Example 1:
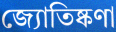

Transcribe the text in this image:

জ্যোতিষ্কণা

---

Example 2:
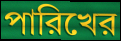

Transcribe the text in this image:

পারিখের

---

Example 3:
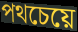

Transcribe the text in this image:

পথচেয়ে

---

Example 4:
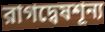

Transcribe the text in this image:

রাগদ্বেষশূন্য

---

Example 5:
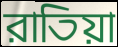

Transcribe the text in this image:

রাতিয়া